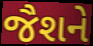
જૈશને